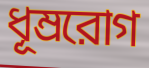
ধূম্ররোগ